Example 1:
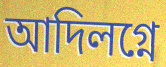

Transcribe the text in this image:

আদিলগ্নে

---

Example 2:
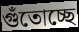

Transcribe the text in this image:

গুঁতোচ্ছে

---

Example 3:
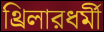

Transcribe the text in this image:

থ্রিলারধর্মী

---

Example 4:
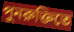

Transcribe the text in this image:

পুনরুক্তিতে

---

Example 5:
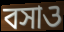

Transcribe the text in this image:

বসাও